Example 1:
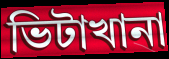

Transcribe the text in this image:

ভিটাখানা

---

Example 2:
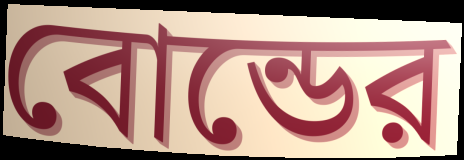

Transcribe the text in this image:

বোন্ডের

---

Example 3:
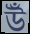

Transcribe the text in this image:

উঁ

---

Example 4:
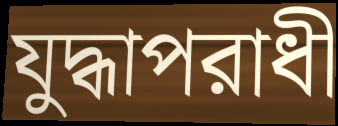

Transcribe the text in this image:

যুদ্ধাপরাধী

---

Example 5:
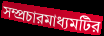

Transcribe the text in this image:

সম্প্রচারমাধ্যমটির